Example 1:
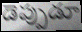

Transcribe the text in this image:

డెప్పుడూ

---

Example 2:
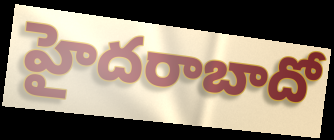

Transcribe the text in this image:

హైదరాబాదో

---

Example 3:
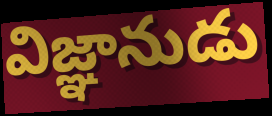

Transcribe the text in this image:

విజ్ఞానుడు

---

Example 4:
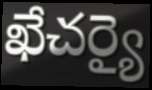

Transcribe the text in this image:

ఖేచర్యై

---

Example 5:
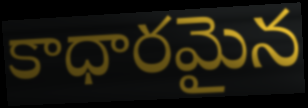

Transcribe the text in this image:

కాధారమైన